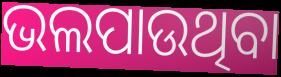
ଭଲପାଉଥିବା